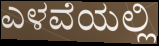
ಎಳವೆಯಲ್ಲಿ